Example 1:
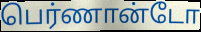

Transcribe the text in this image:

பெர்ணான்டோ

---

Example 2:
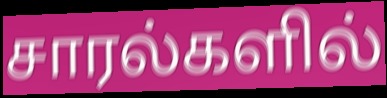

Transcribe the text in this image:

சாரல்களில்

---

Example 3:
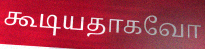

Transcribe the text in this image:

கூடியதாகவோ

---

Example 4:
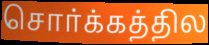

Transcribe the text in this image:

சொர்க்கத்தில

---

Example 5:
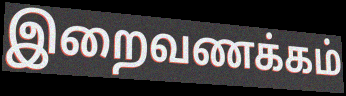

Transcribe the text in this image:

இறைவணக்கம்